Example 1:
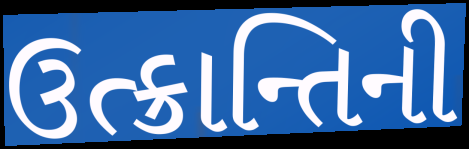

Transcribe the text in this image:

ઉત્ક્રાન્તિની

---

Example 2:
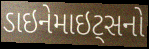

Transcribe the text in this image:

ડાઇનેમાઇટ્સનો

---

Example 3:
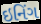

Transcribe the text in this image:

ઇનિંગ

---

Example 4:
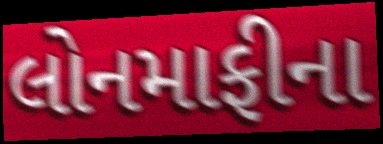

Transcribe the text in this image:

લોનમાફીના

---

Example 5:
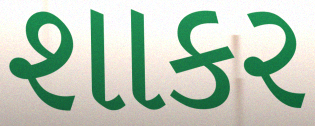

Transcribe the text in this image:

શાકર